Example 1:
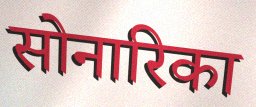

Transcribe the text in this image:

सोनारिका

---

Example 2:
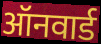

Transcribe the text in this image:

ऑनवार्ड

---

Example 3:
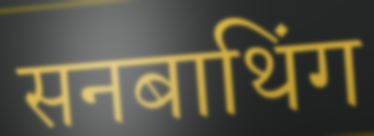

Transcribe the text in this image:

सनबाथिंग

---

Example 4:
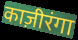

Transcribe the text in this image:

काज़ीरंगा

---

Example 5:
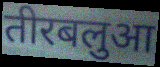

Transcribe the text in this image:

तीरबलुआ